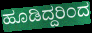
ಹೂಡಿದ್ದರಿಂದ